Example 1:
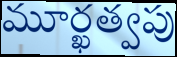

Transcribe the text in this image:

మూర్ఖత్వపు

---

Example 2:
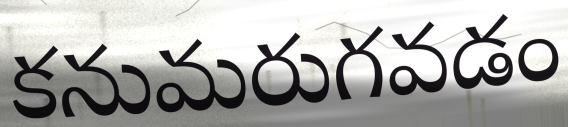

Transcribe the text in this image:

కనుమరుగవడం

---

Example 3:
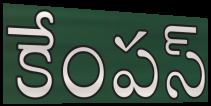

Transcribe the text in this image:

కేంపస్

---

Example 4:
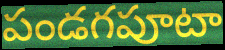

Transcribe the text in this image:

పండగపూటా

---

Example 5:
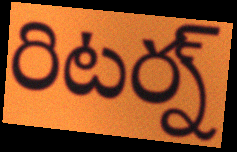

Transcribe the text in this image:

రిటర్న్